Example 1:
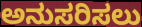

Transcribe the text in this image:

ಅನುಸರಿಸಲು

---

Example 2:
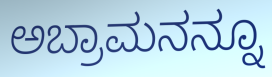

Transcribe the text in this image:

ಅಬ್ರಾಮನನ್ನೂ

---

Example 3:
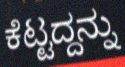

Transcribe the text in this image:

ಕೆಟ್ಟದ್ದನ್ನು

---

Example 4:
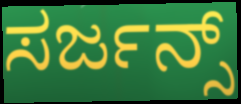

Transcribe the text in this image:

ಸರ್ಜನ್ಸ್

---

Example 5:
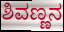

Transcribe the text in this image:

ಶಿವಣ್ಣನ